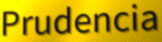
Prudencia